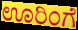
ಊರಿಂಗೆ